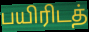
பயிரிடத்